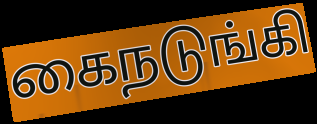
கைநடுங்கி